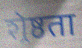
श्रेष्ठता